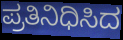
ಪ್ರತಿನಿಧಿಸಿದ